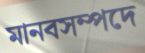
মানবসম্পদে